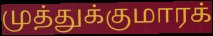
முத்துக்குமாரக்